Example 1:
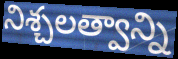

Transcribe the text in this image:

నిశ్చలత్వాన్ని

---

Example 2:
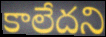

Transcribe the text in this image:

కాలేదని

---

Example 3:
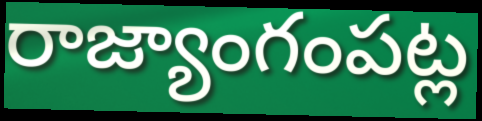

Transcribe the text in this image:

రాజ్యాంగంపట్ల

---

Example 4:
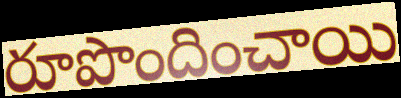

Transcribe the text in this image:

రూపొందించాయి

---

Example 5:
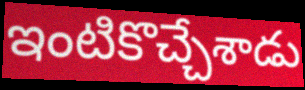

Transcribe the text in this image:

ఇంటికొచ్చేశాడు